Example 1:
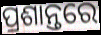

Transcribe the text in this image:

ପ୍ରଶାନ୍ତରେ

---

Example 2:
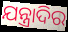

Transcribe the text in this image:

ଯନ୍ତ୍ରାଦିର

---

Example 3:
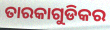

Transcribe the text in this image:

ତାରକାଗୁଡିକର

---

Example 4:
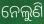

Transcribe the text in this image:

ନେଲୁଣି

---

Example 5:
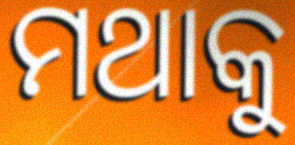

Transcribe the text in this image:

ମଥାକୁ